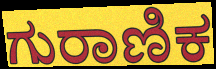
ಗುರಾಣಿಕ